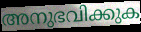
അനുഭവിക്കുക